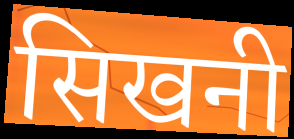
सिखनी